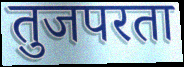
तुजपरता